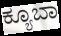
ಕ್ಯೂಬಾ